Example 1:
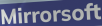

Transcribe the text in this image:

Mirrorsoft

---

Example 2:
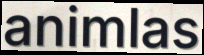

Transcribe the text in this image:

animlas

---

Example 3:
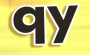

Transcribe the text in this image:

qy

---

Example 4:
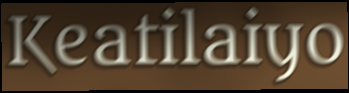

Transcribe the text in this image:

Keatilaiyo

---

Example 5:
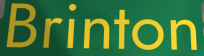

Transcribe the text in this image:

Brinton